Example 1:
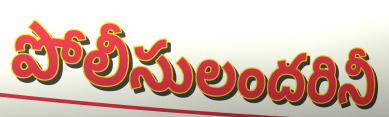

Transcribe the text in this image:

పోలీసులందరినీ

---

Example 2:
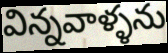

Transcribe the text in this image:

విన్నవాళ్ళను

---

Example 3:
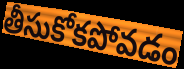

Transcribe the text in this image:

తీసుకోకపోవడం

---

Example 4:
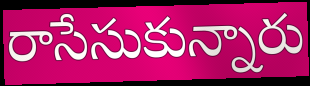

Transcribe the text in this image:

రాసేసుకున్నారు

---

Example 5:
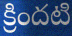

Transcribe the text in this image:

క్రిందటి